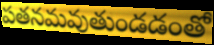
పతనమవుతుండడంతో